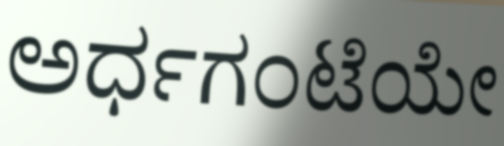
ಅರ್ಧಗಂಟೆಯೇ